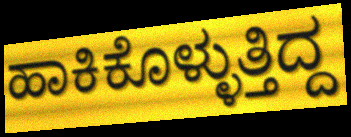
ಹಾಕಿಕೊಳ್ಳುತ್ತಿದ್ದ